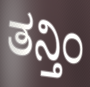
ತನ್ತಿಂ